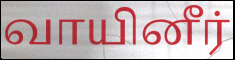
வாயினீர்